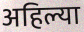
अहिल्या